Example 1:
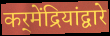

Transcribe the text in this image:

कर्मेंद्रियांद्वारे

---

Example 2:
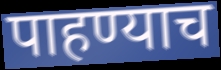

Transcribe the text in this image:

पाहण्याच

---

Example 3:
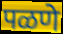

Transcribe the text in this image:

पळणे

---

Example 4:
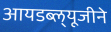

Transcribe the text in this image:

आयडब्ल्यूजीने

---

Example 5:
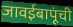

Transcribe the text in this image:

जावईबापूंची